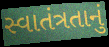
સ્વાતંત્રતાનું